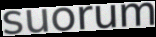
suorum